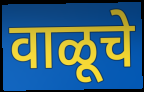
वाळूचे